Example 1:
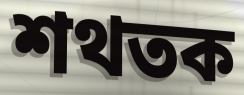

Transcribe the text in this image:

শথতক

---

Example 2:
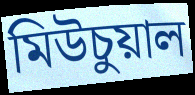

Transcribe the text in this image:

মিউচুয়াল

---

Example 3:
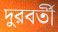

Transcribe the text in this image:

দুরবর্তী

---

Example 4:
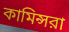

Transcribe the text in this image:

কামিন্সরা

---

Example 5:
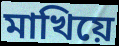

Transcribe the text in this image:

মাখিয়ে